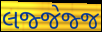
લજ્જેજ્જ